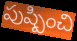
పుష్పించి